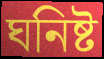
ঘনিষ্ট